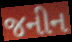
જનીન